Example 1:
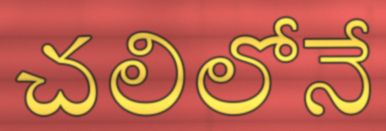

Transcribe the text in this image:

చలిలోనే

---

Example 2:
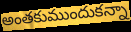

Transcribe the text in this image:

అంతకుముందుకన్నా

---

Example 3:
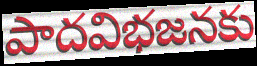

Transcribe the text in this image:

పాదవిభజనకు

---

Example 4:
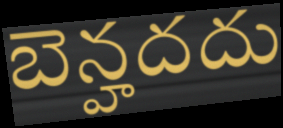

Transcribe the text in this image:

బెన్హదదు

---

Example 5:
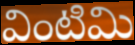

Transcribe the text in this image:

వింటిమి